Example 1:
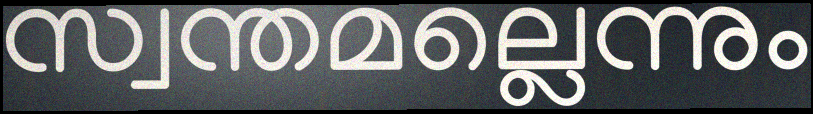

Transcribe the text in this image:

സ്വന്തമല്ലെന്നും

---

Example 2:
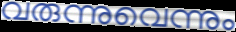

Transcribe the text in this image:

വരുന്നുവെന്നും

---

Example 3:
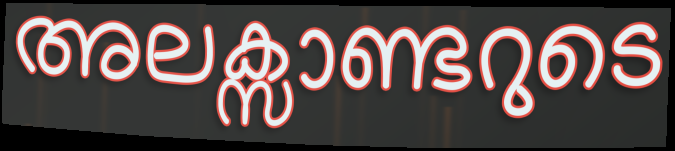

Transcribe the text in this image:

അലക്സാണ്ടറുടെ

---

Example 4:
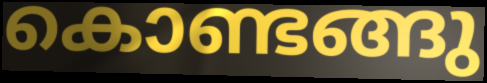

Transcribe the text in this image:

കൊണ്ടങ്ങു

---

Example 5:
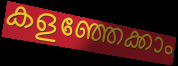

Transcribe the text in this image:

കളഞ്ഞേക്കാം